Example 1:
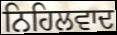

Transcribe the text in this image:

ਨਿਹਿਲਵਾਦ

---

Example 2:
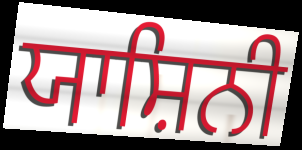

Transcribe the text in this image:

ਯਾਸ਼ਿਨੀ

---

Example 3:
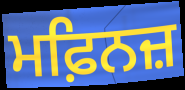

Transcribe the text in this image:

ਮਫ਼ਿਨਜ਼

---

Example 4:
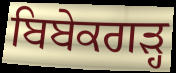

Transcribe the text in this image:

ਬਿਬੇਕਗੜ੍ਹ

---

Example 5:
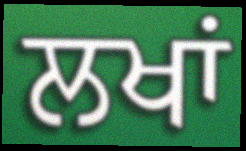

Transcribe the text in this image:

ਲਖਾਂ